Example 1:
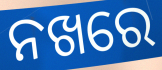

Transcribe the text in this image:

ନଖରେ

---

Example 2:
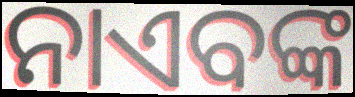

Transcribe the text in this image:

ନାଏବଙ୍କ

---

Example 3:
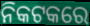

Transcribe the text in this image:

ନିକଟକରେ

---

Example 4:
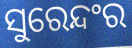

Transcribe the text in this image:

ସୁରେନ୍ଦଂର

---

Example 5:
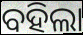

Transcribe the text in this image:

ବହିଲା